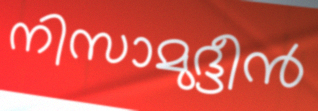
നിസാമുദ്ദീൻ